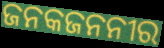
ଜନକଜନନୀର